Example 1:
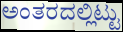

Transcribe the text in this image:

ಅಂತರದಲ್ಲಿಟ್ಟು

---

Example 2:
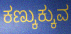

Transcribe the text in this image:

ಕಣ್ಕುಕ್ಕುವ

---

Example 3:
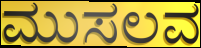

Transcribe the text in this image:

ಮುಸಲವ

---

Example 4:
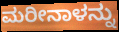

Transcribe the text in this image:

ಮರೀನಾಳನ್ನು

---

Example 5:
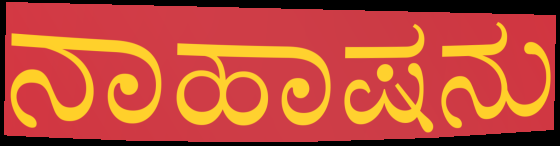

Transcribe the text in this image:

ನಾಹಾಷನು